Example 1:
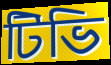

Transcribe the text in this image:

টিভি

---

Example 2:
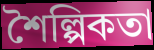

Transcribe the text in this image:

শৈল্পিকতা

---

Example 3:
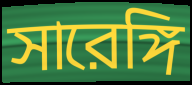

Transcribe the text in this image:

সারেঙ্গি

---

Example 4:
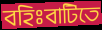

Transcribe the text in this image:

বহিঃবাটিতে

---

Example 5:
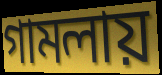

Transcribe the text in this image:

গামলায়